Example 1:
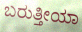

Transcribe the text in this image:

ಬರುತ್ತೀಯಾ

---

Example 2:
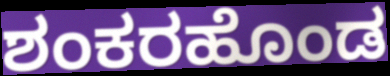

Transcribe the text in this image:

ಶಂಕರಹೊಂಡ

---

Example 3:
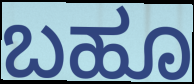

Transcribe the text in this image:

ಬಹೂ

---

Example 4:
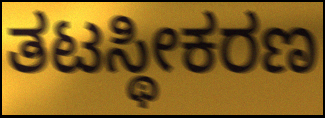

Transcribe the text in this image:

ತಟಸ್ಥೀಕರಣ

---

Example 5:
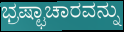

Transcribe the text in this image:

ಭ್ರಷ್ಟಾಚಾರವನ್ನು